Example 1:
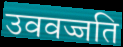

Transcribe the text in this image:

उववज्जति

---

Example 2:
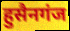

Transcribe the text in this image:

हुसैनगंज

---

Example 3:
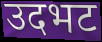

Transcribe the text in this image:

उदभट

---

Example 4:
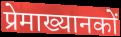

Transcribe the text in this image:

प्रेमाख्यानकों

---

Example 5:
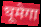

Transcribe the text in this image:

घूमेगा